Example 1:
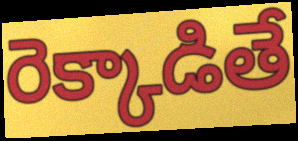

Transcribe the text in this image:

రెక్కాడితే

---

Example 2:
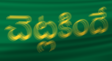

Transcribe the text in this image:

చెట్లకిందే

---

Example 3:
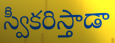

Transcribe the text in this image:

స్వీకరిస్తాడా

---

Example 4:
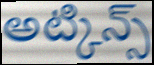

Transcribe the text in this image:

అట్కిన్స్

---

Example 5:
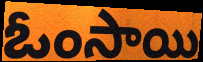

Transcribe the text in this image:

ఓంసాయి